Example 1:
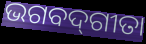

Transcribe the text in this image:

ଭଗବଦ୍‌ଗୀତା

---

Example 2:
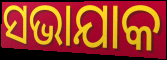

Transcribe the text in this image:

ସଭାଯାକ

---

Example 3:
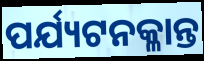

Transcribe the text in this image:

ପର୍ଯ୍ୟଟନକ୍ଳାନ୍ତ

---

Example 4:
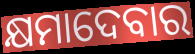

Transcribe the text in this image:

କ୍ଷମାଦେବାର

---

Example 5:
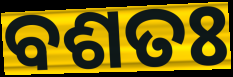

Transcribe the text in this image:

ବଶତଃ